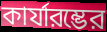
কার্যারম্ভের